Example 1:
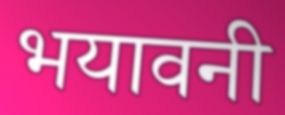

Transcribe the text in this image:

भयावनी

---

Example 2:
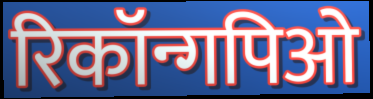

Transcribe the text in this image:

रिकॉन्गपिओ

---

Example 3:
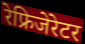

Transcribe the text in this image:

रेफ्रिजेरेटर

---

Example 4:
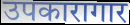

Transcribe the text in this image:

उपकारागार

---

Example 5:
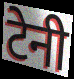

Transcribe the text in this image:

टेनी